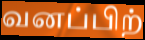
வனப்பிற்